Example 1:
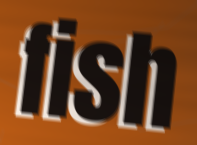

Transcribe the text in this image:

fish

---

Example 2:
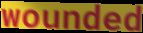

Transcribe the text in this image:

wounded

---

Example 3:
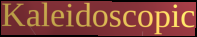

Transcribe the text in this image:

Kaleidoscopic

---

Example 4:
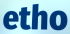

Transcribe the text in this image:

etho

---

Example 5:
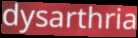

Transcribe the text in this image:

dysarthria